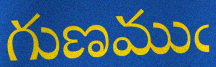
గుణముఁ